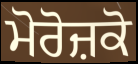
ਮੋਰੋਜ਼ਕੋ